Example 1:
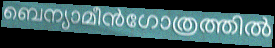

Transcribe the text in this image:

ബെന്യാമീൻഗോത്രത്തിൽ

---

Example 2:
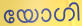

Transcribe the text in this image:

യോഗി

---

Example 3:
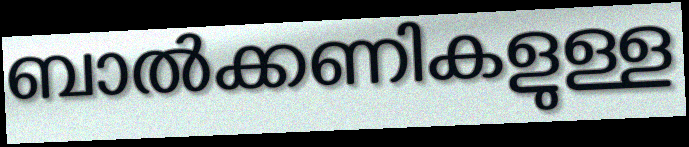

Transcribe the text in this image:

ബാൽക്കണികളുള്ള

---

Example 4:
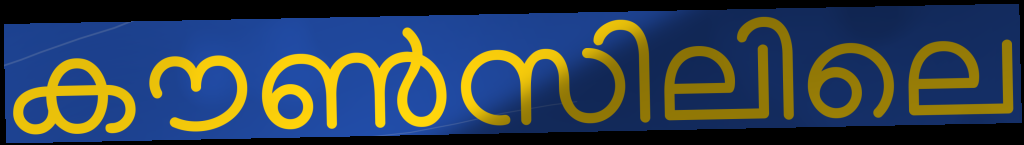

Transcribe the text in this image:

കൗൺസിലിലെ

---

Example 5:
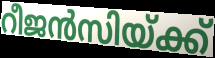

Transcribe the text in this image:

റീജൻസിയ്ക്ക്